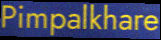
Pimpalkhare